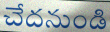
చేదనుండి